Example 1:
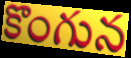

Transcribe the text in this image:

కొంగున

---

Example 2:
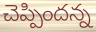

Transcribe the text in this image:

చెప్పిందన్న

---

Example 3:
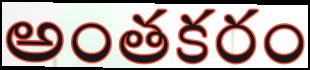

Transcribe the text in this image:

అంతకరం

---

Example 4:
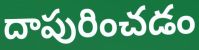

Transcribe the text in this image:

దాపురించడం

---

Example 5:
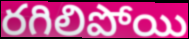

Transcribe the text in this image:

రగిలిపోయి